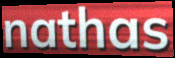
nathas